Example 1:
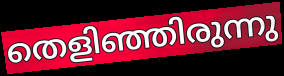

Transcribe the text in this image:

തെളിഞ്ഞിരുന്നു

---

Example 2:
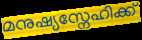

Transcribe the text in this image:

മനുഷ്യസ്നേഹിക്ക്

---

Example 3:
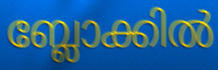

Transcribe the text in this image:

ബ്ലോക്കിൽ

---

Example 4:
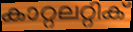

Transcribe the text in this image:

കാറ്റലറ്റിക്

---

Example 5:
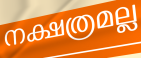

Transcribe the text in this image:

നക്ഷത്രമല്ല